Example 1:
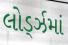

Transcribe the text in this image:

લોર્ડ્ઝમાં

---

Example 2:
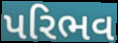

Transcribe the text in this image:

પરિભવ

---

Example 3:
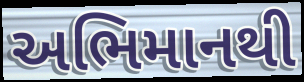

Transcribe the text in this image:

અભિમાનથી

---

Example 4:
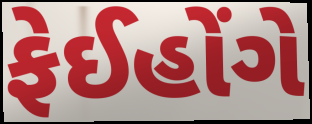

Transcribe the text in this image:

ફેઈહોંગે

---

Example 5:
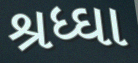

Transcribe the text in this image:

શ્રધ્ઘા